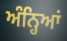
ਅੰਨ੍ਹਿਆਂ